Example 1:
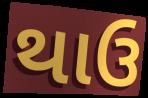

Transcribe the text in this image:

થાઉ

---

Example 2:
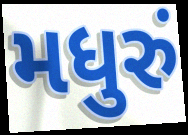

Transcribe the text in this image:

મધુરું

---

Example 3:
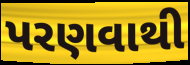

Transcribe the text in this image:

પરણવાથી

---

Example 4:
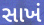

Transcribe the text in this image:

સાખં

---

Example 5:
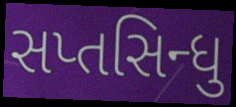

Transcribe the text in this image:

સપ્તસિન્ધુ